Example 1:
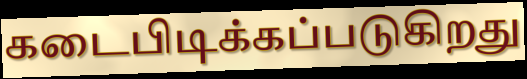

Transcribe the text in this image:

கடைபிடிக்கப்படுகிறது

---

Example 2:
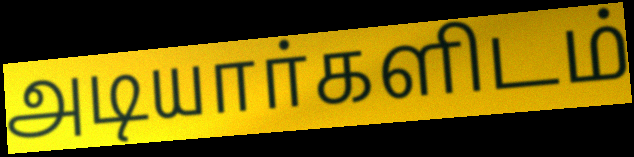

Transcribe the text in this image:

அடியார்களிடம்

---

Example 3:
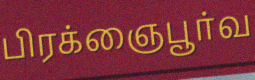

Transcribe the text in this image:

பிரக்ஞைபூர்வ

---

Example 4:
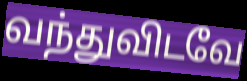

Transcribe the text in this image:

வந்துவிடவே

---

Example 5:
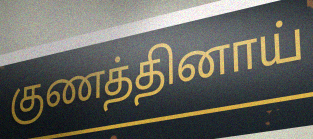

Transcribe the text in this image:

குணத்தினாய்